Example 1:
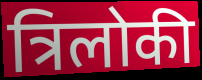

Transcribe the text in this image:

त्रिलोकी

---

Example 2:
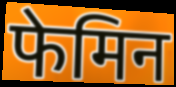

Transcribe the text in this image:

फेमिन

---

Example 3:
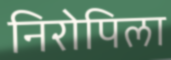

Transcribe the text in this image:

निरोपिला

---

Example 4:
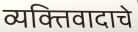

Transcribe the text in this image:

व्यक्तिवादाचे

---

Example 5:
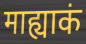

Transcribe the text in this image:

माह्याकं